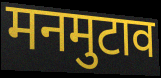
मनमुटाव